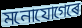
মনোযোগেৰে